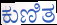
ಕುಣಿತ